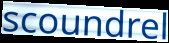
scoundrel